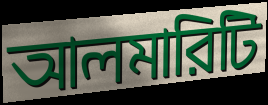
আলমারিটি